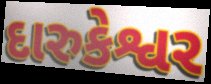
દારુકેશ્વર